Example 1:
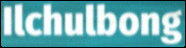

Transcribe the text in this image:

Ilchulbong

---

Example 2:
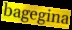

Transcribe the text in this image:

bagegina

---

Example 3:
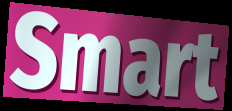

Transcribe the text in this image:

Smart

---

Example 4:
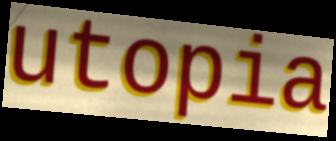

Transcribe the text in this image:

utopia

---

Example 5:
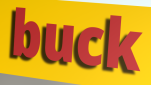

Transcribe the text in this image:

buck